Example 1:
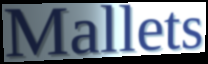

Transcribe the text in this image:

Mallets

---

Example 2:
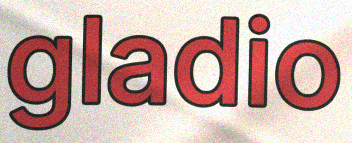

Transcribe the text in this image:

gladio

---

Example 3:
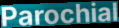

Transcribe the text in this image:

Parochial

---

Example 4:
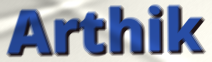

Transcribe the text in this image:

Arthik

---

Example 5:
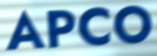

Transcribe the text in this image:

APCO